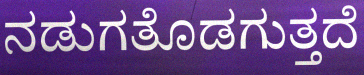
ನಡುಗತೊಡಗುತ್ತದೆ